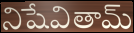
నిషేవితామ్